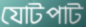
যোটপাট